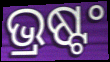
ଭ୍ରଷ୍ଟଂ